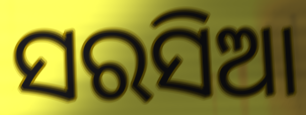
ସରସିଆ